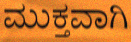
ಮುಕ್ತವಾಗಿ